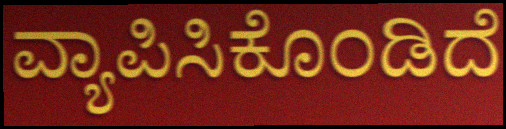
ವ್ಯಾಪಿಸಿಕೊಂಡಿದೆ